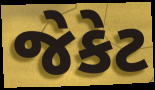
જેકેટ